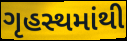
ગૃહસ્થમાંથી